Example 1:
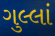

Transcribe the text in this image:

ગુલ્લાં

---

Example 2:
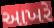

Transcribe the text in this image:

આખરે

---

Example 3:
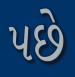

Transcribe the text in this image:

પછે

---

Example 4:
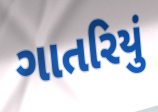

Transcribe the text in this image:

ગાતરિયું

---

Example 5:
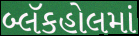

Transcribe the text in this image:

બ્લૅકહોલમાં